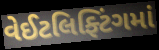
વેઈટલિફ્ટિંગમાં